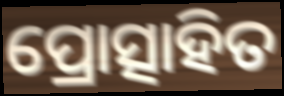
ପ୍ରୋତ୍ସାହିତ